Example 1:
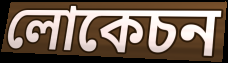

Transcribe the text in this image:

লোকেচন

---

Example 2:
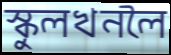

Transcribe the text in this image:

স্কুলখনলৈ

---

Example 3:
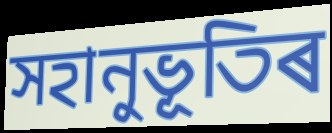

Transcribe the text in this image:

সহানুভূতিৰ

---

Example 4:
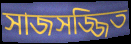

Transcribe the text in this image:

সাজসজ্জিত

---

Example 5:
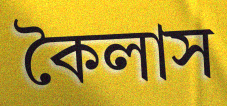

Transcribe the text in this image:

কৈলাস